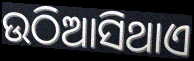
ଉଠିଆସିଥାଏ